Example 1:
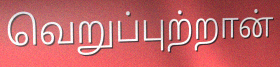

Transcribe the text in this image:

வெறுப்புற்றான்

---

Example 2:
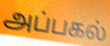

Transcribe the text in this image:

அப்பகல்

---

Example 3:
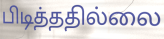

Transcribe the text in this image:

பிடித்ததில்லை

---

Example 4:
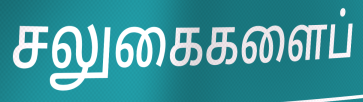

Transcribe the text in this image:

சலுகைகளைப்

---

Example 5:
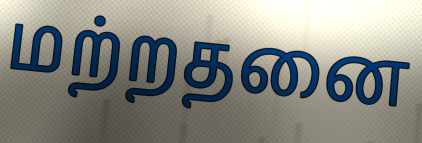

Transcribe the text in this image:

மற்றதனை